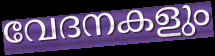
വേദനകളും